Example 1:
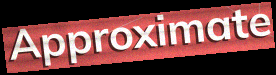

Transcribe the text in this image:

Approximate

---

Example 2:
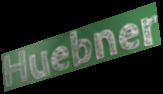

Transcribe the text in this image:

Huebner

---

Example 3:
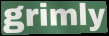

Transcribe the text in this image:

grimly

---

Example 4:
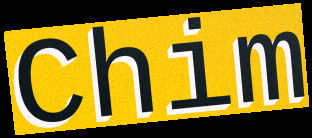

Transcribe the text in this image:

Chim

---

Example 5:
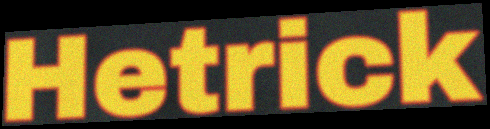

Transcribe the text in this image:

Hetrick